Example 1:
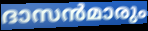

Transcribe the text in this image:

ദാസൻമാരും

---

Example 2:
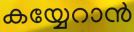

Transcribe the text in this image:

കയ്യേറാൻ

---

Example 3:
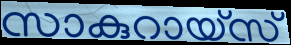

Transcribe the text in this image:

സാകുറായ്സ്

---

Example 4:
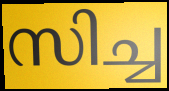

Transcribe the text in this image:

സിച്ച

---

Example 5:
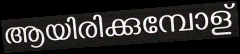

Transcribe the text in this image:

ആയിരിക്കുമ്പോള്